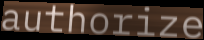
authorize